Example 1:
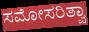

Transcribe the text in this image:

ಸಮೋಸರಿತ್ವಾ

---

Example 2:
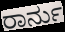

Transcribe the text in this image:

ರಾರ್ನು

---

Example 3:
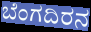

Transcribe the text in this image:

ಬೆಂಗದಿರನ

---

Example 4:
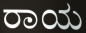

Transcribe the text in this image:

ರಾಯ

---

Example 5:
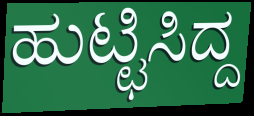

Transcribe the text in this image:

ಹುಟ್ಟಿಸಿದ್ದ